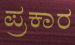
ಪ್ರಕಾರ